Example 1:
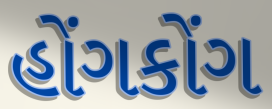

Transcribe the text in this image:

હોંગકોંગ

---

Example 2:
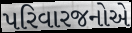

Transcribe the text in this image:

પરિવારજનોએ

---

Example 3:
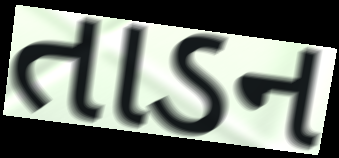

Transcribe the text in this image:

તાડન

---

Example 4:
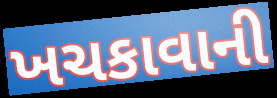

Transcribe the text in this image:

ખચકાવાની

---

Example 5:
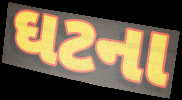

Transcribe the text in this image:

ઘટના